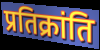
प्रतिक्रांति